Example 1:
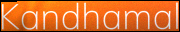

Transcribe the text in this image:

Kandhamal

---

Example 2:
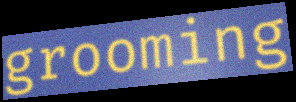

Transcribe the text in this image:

grooming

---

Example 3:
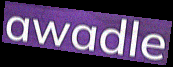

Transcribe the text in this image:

awadle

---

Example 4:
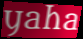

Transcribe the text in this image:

yaha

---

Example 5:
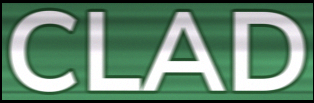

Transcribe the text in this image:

CLAD